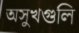
অসুখগুলি